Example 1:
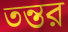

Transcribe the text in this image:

তন্তর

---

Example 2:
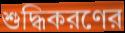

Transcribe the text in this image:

শুদ্ধিকরণের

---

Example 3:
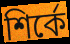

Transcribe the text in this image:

শির্কে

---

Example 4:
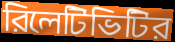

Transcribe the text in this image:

রিলেটিভিটির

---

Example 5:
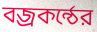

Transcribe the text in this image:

বজ্রকন্ঠের